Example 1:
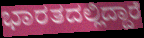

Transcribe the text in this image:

ಭಾರತದಲ್ಲಿದ್ದಾರೆ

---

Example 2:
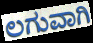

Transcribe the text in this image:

ಲಗುವಾಗಿ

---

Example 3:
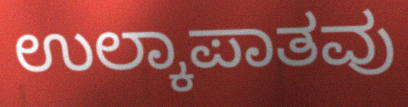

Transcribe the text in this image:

ಉಲ್ಕಾಪಾತವು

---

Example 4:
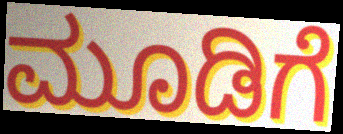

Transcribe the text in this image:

ಮೂಡಿಗೆ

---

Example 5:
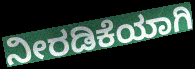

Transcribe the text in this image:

ನೀರಡಿಕೆಯಾಗಿ